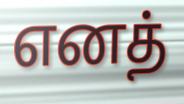
எனத்